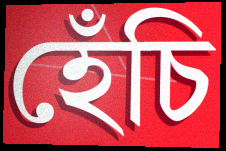
হেঁচি